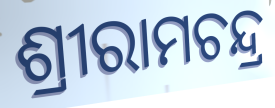
ଶ୍ରୀରାମଚନ୍ଦ୍ର